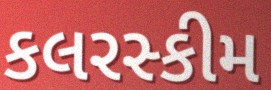
કલરસ્કીમ